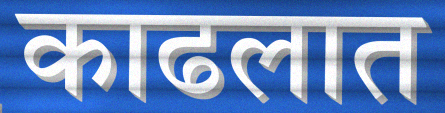
काढलात